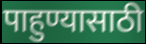
पाहुण्यासाठी